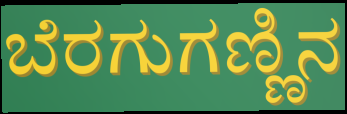
ಬೆರಗುಗಣ್ಣಿನ